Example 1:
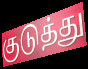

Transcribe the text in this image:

குடுத்து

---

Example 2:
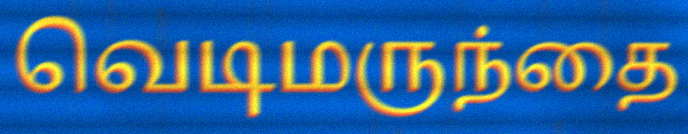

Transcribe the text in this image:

வெடிமருந்தை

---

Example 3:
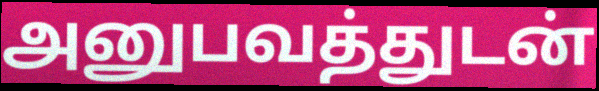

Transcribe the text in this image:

அனுபவத்துடன்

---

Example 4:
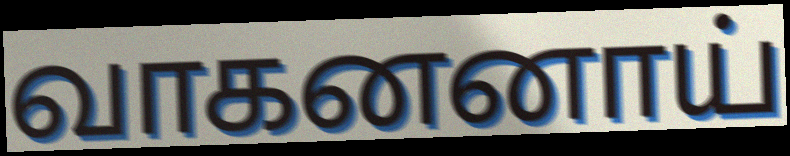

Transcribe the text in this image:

வாகனனாய்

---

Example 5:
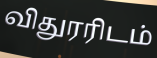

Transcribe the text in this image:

விதுரரிடம்